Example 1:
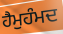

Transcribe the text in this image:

ਹੈਮੁਹੰਮਦ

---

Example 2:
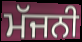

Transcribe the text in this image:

ਮੱਜਨੀ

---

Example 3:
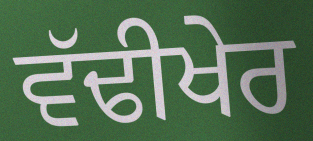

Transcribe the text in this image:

ਵੱਢੀਖੇਰ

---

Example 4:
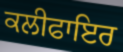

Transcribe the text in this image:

ਕਲੀਫਾਇਰ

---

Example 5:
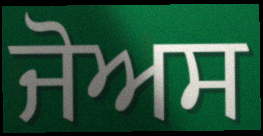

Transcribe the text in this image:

ਜੋਅਸ